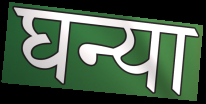
घन्या